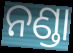
ନଣ୍ଡା